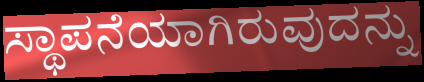
ಸ್ಥಾಪನೆಯಾಗಿರುವುದನ್ನು